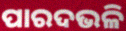
ପାରଦଭଳି